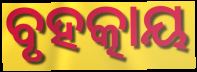
ବୃହତ୍କାୟ